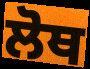
ਲੋਥ